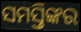
ସମସ୍ତିଙ୍କର